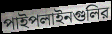
পাইপলাইনগুলির